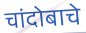
चांदोबाचे